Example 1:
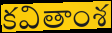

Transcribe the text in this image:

కవితాంశ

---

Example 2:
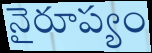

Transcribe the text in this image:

నైరూప్యం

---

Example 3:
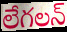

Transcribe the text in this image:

లేగలన్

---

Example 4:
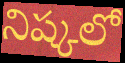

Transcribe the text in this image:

నిష్కలో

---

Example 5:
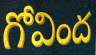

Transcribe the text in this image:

గోవింద